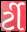
ર્ટી